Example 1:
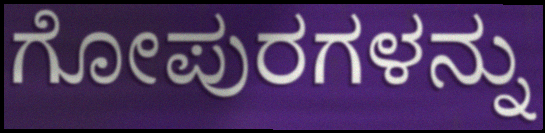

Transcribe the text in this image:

ಗೋಪುರಗಳನ್ನು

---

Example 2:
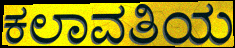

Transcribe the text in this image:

ಕಲಾವತಿಯ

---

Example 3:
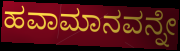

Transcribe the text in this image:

ಹವಾಮಾನವನ್ನೇ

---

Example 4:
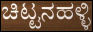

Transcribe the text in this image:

ಚಿಟ್ಟನಹಳ್ಳಿ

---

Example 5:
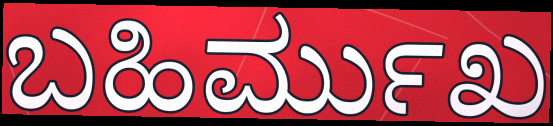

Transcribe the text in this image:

ಬಹಿರ್ಮುಖ